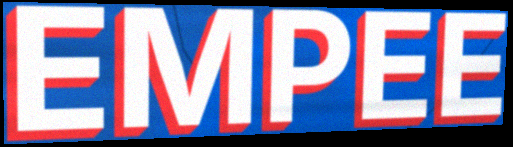
EMPEE